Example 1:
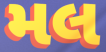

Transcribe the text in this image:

મલ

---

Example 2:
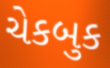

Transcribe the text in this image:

ચેકબુક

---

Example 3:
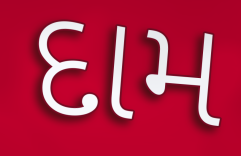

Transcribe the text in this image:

દામ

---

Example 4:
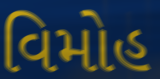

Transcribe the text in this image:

વિમોહ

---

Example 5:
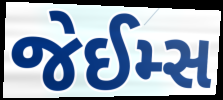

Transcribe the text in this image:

જેઈમ્સ